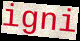
igni